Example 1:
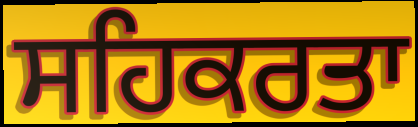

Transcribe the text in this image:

ਸਹਿਕਰਤਾ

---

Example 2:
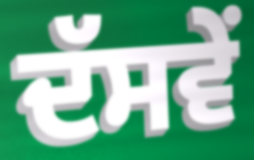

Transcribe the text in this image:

ਦੱਸਵੇਂ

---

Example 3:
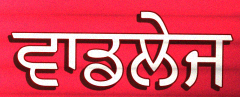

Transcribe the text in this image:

ਵਾਡਲੇਜ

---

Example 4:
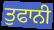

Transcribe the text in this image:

ਤੁਫਾਨੀ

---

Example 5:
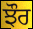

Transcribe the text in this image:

ਝੌਰ